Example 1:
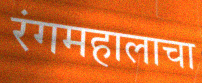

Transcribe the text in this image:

रंगमहालाचा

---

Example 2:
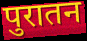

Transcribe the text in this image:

पुरातन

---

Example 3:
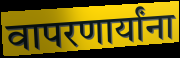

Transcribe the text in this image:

वापरणार्यांना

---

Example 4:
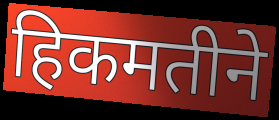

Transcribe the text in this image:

हिकमतीने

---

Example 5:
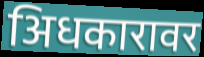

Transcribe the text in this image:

अिधकारावर